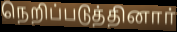
நெறிப்படுத்தினார்